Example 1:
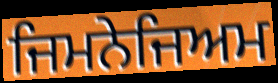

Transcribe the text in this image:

ਜਿਮਨੇਜਿਅਮ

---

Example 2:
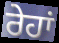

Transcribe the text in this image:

ਰੇਹਾਂ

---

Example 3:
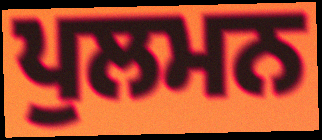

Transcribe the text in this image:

ਪੁਲਮਨ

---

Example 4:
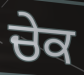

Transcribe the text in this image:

ਚੇਕ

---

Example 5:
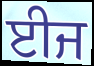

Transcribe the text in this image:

ਈਜ